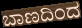
ಬಾಣದಿಂದ